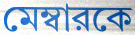
মেম্বারকে